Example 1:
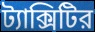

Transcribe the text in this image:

ট্যাক্সিটির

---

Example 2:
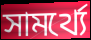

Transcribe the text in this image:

সামর্থ্যে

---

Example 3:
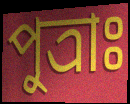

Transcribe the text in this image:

পুত্রাঃ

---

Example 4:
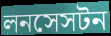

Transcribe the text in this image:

লনসেসটন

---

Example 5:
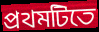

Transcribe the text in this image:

প্রথমটিতে